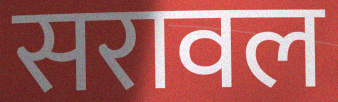
सरावल